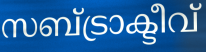
സബ്ട്രാക്ടീവ്